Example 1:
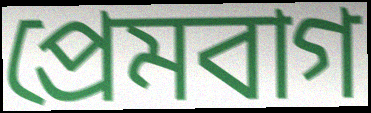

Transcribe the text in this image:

প্রেমবাগ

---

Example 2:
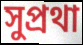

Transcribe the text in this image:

সুপ্রথা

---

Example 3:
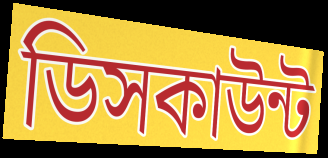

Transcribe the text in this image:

ডিসকাউন্ট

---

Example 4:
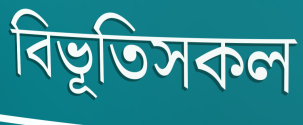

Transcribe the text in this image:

বিভূতিসকল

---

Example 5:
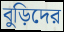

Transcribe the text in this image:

বুড়িদের